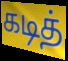
கடித்